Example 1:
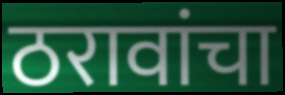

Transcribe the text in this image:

ठरावांचा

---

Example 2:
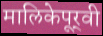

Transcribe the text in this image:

मालिकेपूर्वी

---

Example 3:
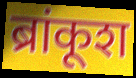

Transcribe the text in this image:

ब्रांकूश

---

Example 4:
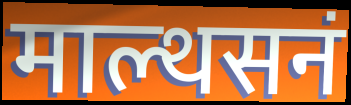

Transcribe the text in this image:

माल्थसनं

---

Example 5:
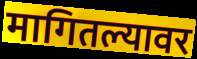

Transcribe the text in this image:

मागितल्यावर